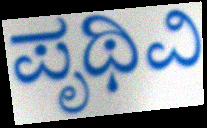
ಪೃಥಿವಿ